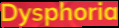
Dysphoria